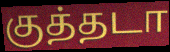
குத்தடா